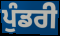
ਪੁੰਡਰੀ